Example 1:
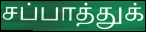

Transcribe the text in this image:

சப்பாத்துக்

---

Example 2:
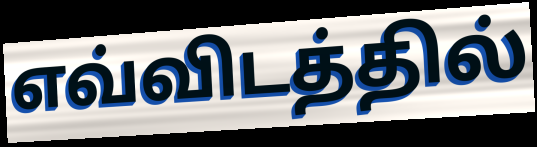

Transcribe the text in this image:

எவ்விடத்தில்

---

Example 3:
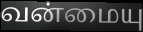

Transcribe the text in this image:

வன்மையு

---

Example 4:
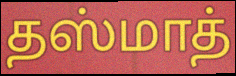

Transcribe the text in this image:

தஸ்மாத்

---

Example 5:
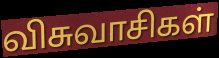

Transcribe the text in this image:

விசுவாசிகள்